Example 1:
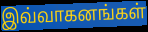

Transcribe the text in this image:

இவ்வாகனங்கள்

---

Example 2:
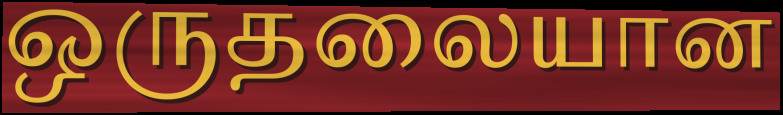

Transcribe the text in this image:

ஒருதலையான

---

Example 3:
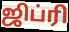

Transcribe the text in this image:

ஜிப்ரி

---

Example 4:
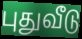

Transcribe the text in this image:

புதுவீடு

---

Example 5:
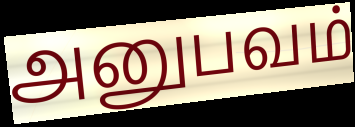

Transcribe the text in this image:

அனுபவம்